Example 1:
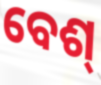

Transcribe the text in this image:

ବେଶ୍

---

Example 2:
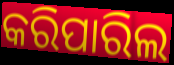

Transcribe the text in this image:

କରିପାରିଲ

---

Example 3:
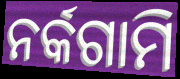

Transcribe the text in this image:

ନର୍କଗାମି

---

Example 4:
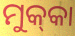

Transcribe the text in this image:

ମୁକ୍‌କା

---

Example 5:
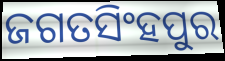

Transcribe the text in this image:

ଜଗତସିଂହପୁର